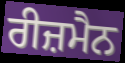
ਰੀਜ਼ਮੈਨ